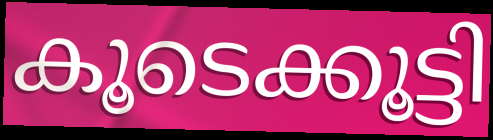
കൂടെക്കൂട്ടി